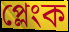
প্লেংক